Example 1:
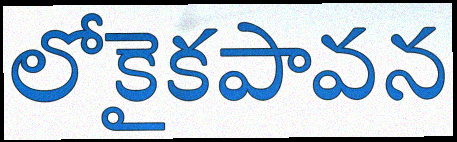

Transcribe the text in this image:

లోకైకపావన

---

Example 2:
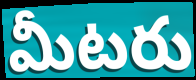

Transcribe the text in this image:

మీటరు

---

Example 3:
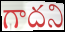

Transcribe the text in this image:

గాదని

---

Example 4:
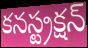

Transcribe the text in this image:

కనస్ట్రక్షన్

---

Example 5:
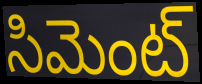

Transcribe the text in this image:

సిమెంట్